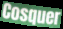
Cosquer